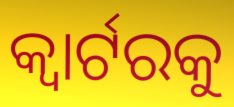
କ୍ୱାର୍ଟରକୁ